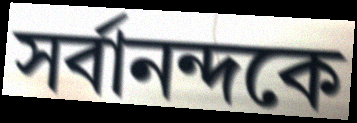
সর্বানন্দকে